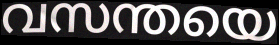
വസന്തയെ